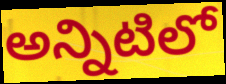
అన్నిటిలో